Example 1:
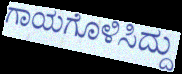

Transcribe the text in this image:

ಗಾಯಗೊಳಿಸಿದ್ದು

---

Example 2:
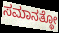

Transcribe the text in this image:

ಸಮಾನತ್ಥೋ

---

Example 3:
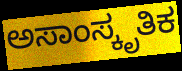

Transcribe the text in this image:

ಅಸಾಂಸ್ಕೃತಿಕ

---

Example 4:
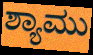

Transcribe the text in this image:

ಶ್ಯಾಮು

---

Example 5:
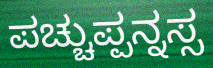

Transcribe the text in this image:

ಪಚ್ಚುಪ್ಪನ್ನಸ್ಸ